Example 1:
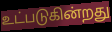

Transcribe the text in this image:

உட்படுகின்றது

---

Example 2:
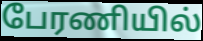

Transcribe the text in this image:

பேரணியில்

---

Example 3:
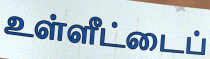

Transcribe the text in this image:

உள்ளீட்டைப்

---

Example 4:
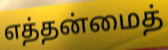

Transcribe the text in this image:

எத்தன்மைத்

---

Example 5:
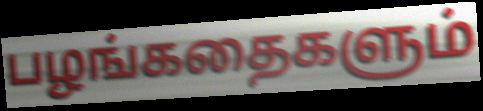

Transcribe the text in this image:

பழங்கதைகளும்